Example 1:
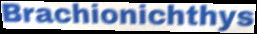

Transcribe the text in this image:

Brachionichthys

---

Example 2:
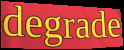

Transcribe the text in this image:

degrade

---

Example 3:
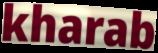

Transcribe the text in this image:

kharab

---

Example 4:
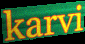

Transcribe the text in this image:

karvi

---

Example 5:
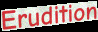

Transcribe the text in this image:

Erudition